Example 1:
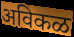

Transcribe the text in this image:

अविकळ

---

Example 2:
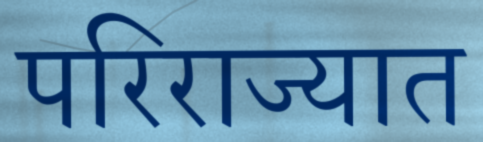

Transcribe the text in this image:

परिराज्यात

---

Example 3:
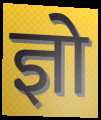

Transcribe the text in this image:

ज्ञो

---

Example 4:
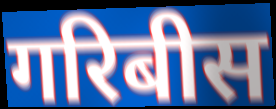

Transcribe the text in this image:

गरिबीस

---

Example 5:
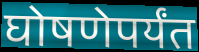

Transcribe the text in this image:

घोषणेपर्यंत